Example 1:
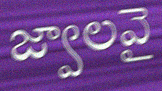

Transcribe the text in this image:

జ్వాలవై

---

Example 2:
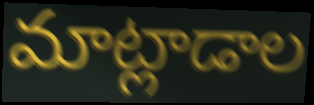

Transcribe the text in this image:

మాట్లాడాల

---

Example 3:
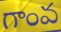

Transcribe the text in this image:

గాంవ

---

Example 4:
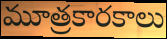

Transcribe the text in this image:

మూత్రకారకాలు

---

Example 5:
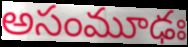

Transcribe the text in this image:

అసంమూఢః